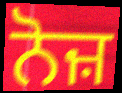
ਨੋਜ਼